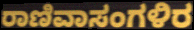
ರಾಣಿವಾಸಂಗಳಿರ